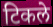
टिकले